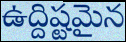
ఉద్దిష్టమైన